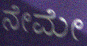
ನೇಮೇ